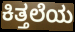
ಕಿತ್ತಲೆಯ